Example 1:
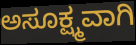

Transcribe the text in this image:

ಅಸೂಕ್ಷ್ಮವಾಗಿ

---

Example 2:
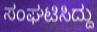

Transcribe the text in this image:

ಸಂಘಟಿಸಿದ್ದು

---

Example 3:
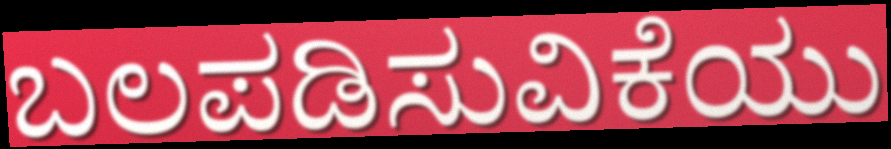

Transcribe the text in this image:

ಬಲಪಡಿಸುವಿಕೆಯು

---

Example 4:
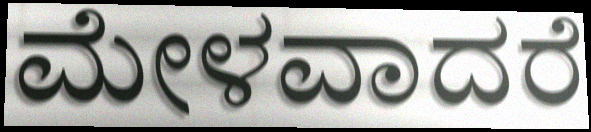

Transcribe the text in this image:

ಮೇಳವಾದರೆ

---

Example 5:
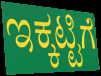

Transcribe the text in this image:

ಇಕ್ಕಟ್ಟಿಗೆ